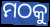
ମଠକୁ